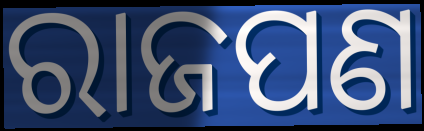
ରାଜପଣ